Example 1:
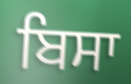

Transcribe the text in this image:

ਬਿਸਾ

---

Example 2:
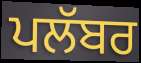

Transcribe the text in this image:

ਪਲੱਬਰ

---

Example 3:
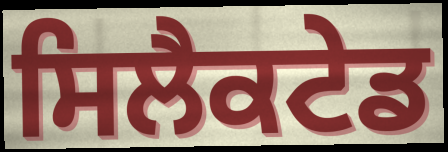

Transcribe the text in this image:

ਸਿਲੈਕਟੇਡ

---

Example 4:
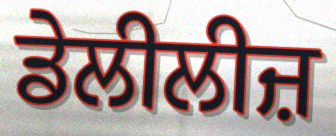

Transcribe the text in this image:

ਡੇਲੀਲੀਜ਼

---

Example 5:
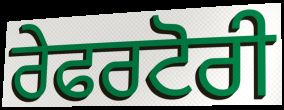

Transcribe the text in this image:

ਰੇਫਰਟੋਰੀ